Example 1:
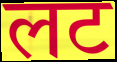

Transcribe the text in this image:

लट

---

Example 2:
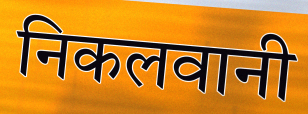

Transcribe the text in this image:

निकलवानी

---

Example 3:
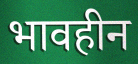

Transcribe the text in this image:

भावहीन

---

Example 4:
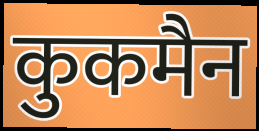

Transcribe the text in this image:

कुकमैन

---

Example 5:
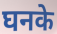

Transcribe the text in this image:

घनके